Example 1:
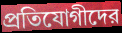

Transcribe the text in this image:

প্রতিযোগীদের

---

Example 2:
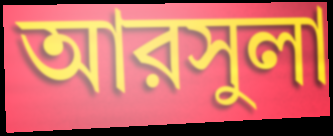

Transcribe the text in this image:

আরসুলা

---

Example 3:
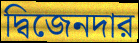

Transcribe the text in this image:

দ্বিজেনদার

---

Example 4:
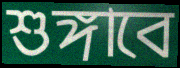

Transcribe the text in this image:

শুঙ্গাবে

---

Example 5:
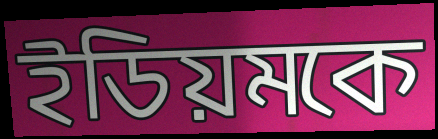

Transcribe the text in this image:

ইডিয়মকে